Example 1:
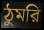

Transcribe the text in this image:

ঠুমরি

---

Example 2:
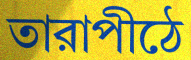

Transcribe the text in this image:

তারাপীঠে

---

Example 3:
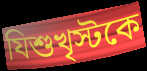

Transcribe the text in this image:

যিশুখৃস্টকে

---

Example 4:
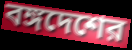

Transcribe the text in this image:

বঙ্গদেশের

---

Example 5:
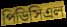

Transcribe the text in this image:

পিডিসিএল